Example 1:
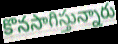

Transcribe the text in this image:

కొనసాగిస్తున్నారు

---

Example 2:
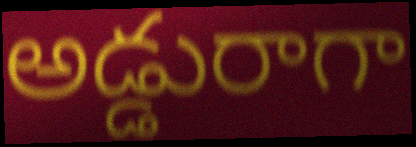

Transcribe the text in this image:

అడ్డురాగా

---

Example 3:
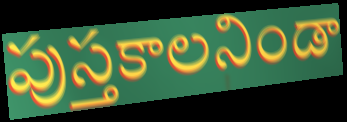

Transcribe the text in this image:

పుస్తకాలనిండా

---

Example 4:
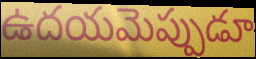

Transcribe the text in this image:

ఉదయమెప్పుడూ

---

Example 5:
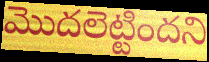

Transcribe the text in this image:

మొదలెట్టిందని